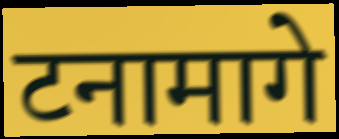
टनामागे